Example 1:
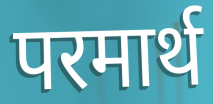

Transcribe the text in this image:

परमार्थ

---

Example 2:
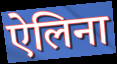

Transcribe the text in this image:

ऐलिना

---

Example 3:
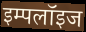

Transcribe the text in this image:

इम्पलॉइज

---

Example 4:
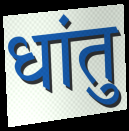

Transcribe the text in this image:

धांतु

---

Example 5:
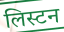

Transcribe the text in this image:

लिस्टन